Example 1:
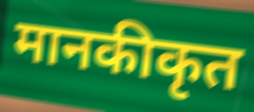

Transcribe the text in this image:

मानकीकृत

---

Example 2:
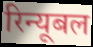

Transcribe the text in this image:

रिन्यूबल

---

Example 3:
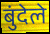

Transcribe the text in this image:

बुंदेले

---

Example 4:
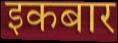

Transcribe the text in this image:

इकबार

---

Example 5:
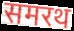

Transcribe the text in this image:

समरथ